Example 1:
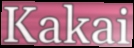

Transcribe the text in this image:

Kakai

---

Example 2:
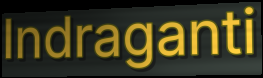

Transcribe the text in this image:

Indraganti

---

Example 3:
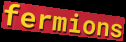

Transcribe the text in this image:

fermions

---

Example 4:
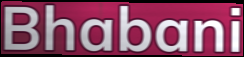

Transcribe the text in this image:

Bhabani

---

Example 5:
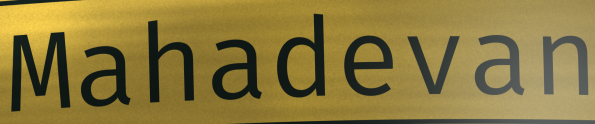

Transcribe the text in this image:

Mahadevan